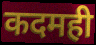
कदमही